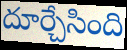
దూర్చేసింది